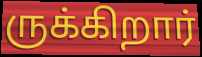
ருக்கிறார்